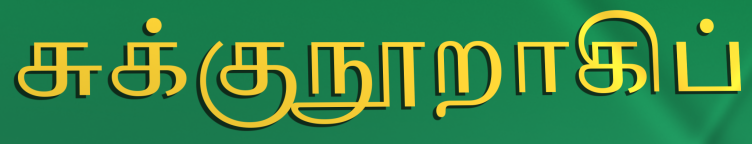
சுக்குநூறாகிப்